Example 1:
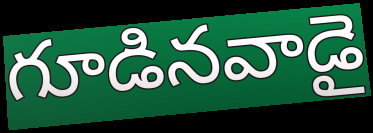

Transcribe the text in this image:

గూడినవాడై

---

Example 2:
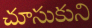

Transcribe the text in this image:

చూసుకుని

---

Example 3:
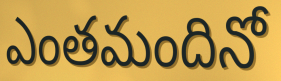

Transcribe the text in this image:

ఎంతమందినో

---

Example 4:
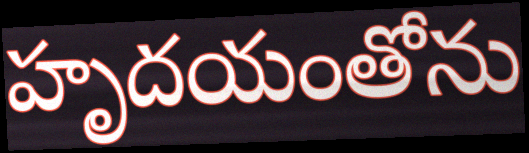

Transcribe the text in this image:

హృదయంతోను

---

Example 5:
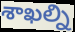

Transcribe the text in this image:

శాఖల్ని